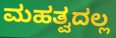
ಮಹತ್ವದಲ್ಲ